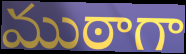
ముఠాగా